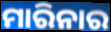
ମାରିନାର